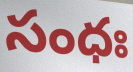
సంధః